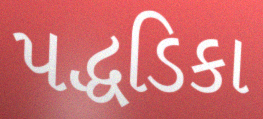
પદ્ધડિકા